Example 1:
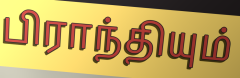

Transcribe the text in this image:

பிராந்தியும்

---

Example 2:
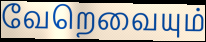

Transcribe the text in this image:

வேறெவையும்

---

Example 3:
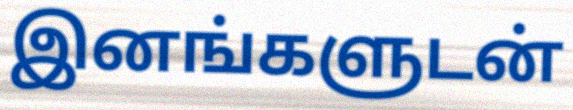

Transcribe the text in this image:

இனங்களுடன்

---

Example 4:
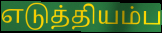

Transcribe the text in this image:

எடுத்தியம்ப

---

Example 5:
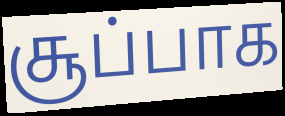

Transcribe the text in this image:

சூப்பாக